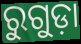
ରୁଗୁଡ଼ା